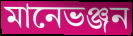
মানেভঞ্জন